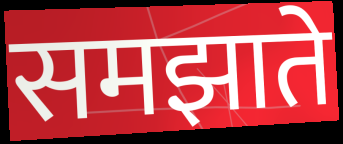
समझाते